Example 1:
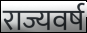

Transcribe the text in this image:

राज्यवर्ष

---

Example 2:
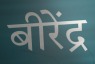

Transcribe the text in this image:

बीरेंद्र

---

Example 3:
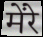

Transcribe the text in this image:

मेंरे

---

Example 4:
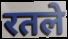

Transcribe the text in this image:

रतले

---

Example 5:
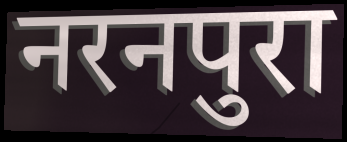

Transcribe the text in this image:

नरनपुरा